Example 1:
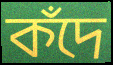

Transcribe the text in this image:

কঁদে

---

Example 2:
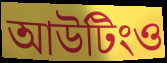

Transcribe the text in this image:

আউটিংও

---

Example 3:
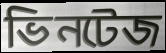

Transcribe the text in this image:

ভিনটেজ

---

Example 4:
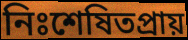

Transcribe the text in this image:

নিঃশেষিতপ্রায়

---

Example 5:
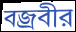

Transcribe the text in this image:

বজ্রবীর